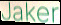
Jaker